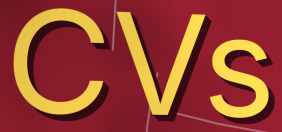
CVs